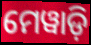
ମେୱାଡ଼ି